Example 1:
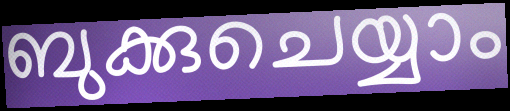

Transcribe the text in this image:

ബുക്കുചെയ്യാം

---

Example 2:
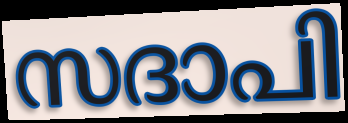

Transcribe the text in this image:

സദാപി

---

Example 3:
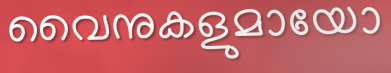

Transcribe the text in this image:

വൈനുകളുമായോ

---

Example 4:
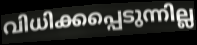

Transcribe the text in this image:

വിധിക്കപ്പെടുന്നില്ല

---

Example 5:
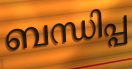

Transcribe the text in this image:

ബന്ധിപ്പ